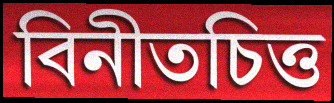
বিনীতচিত্ত